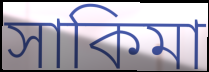
সাকিমা